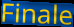
Finale